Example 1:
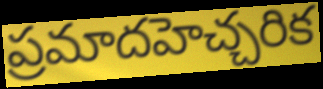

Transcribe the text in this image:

ప్రమాదహెచ్చరిక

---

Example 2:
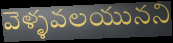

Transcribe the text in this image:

వెళ్ళవలయునని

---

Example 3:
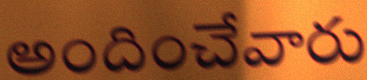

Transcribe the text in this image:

అందించేవారు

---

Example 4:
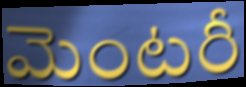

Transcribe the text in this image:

మెంటరీ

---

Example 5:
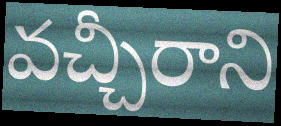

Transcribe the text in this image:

వచ్చీరాని